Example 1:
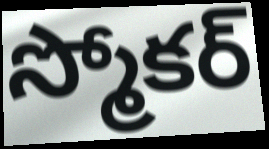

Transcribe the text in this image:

స్మోకర్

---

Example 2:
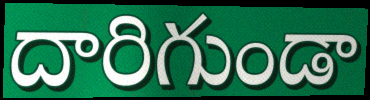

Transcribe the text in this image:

దారిగుండా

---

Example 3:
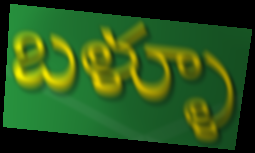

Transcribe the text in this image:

బళ్ళూ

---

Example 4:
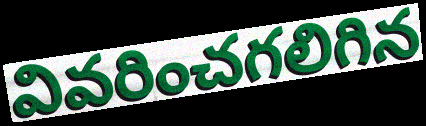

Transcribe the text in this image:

వివరించగలిగిన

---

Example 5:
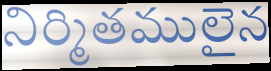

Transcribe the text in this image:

నిర్మితములైన